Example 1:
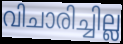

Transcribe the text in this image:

വിചാരിച്ചില്ല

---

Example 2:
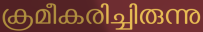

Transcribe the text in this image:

ക്രമീകരിച്ചിരുന്നു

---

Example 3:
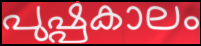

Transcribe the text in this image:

പുഷ്പകാലം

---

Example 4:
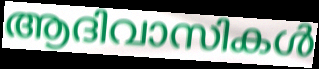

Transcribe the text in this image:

ആദിവാസികൾ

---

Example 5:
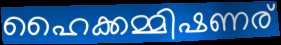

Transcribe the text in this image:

ഹൈക്കമ്മിഷണര്